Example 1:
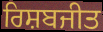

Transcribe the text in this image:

ਰਿਸ਼ਬਜੀਤ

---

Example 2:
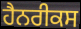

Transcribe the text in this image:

ਹੈਨਰੀਕਸ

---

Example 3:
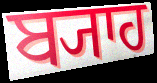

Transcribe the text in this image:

ਬ੍ਯਾਹ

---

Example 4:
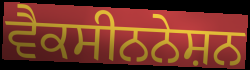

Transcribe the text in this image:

ਵੈਕਸੀਨਨੇਸ਼ਨ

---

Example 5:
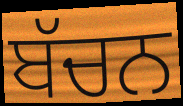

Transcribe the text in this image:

ਬੱਚਨ